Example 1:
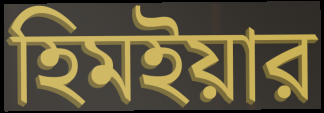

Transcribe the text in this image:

হিমইয়ার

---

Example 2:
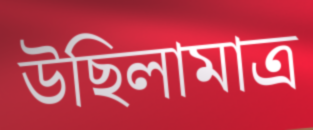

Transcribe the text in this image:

উছিলামাত্র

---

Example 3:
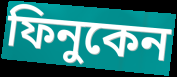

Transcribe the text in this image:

ফিনুকেন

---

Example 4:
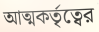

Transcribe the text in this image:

আত্মকর্তৃত্বের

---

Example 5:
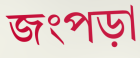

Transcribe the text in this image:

জংপড়া